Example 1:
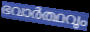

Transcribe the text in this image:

ഭവാർത്ഥവും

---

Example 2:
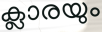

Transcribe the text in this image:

ക്ലാരയും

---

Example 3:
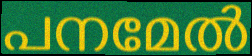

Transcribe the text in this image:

പനമേൽ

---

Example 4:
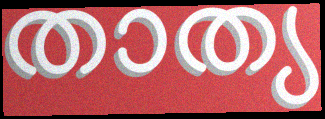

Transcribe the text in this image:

താത്യ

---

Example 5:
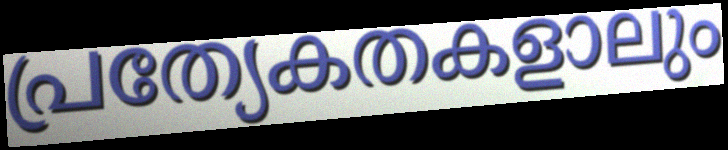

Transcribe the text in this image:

പ്രത്യേകതകളാലും